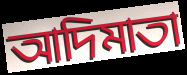
আদিমাতা